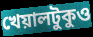
খেয়ালটুকুও